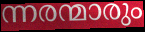
ന്നരന്മാരും